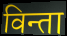
विन्ता